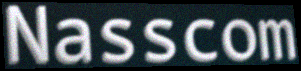
Nasscom